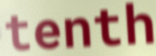
tenth